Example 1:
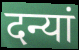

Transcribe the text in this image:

दन्यां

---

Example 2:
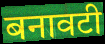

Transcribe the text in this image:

बनावटी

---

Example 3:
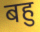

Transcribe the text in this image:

बहु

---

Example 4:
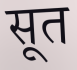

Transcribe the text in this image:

सूत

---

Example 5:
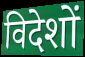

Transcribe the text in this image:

विदेशों